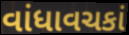
વાંધાવચકાં